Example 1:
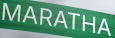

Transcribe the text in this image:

MARATHA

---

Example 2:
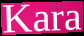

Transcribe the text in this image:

Kara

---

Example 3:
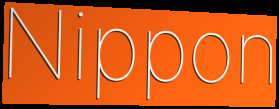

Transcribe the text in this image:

Nippon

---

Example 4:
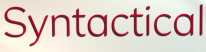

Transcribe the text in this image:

Syntactical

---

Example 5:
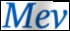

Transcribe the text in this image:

Mev